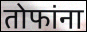
तोफांना